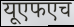
यूएफएच